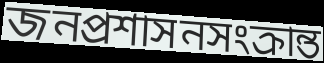
জনপ্রশাসনসংক্রান্ত